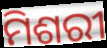
ମିଶରୀ